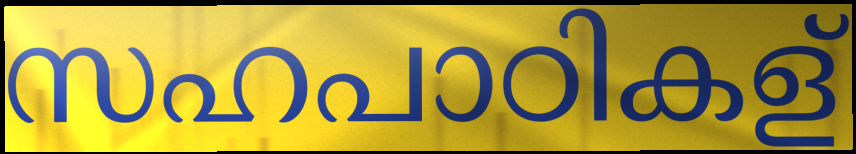
സഹപാഠികള്